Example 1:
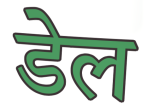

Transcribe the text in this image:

डेल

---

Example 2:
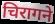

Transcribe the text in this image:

चिरागने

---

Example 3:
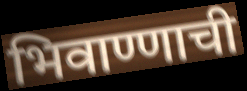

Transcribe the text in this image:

भिवाण्णाची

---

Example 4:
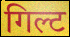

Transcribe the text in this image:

गिल्ट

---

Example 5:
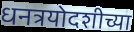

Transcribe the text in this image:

धनत्रयोदशीच्या